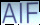
AIF